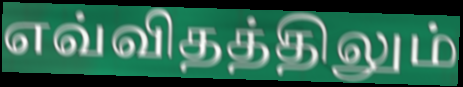
எவ்விதத்திலும்